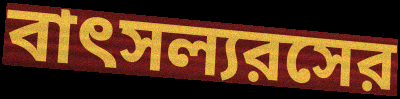
বাৎসল্যরসের